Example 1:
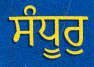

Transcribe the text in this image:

ਸੰਧੂਰੁ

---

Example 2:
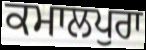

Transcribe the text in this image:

ਕਮਾਲਪੁਰਾ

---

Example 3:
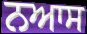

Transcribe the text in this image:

ਨਆਸ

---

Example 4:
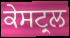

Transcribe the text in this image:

ਕੇਸਟ੍ਰਲ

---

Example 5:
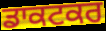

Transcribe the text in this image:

ਡਾਕਟਕਰ